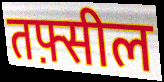
तफ़्सील